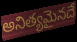
అనిత్యమైనదే